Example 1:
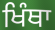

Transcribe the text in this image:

ਖਿੰਥਾ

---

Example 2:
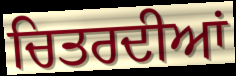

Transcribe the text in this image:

ਚਿਤਰਦੀਆਂ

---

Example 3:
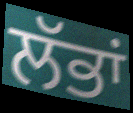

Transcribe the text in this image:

ਲੱਭਾਂ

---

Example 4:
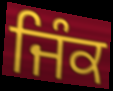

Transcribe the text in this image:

ਜਿੰਕ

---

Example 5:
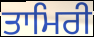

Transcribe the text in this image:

ਤਾਮਿਰੀ